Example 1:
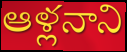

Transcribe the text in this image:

ఆళ్లనాని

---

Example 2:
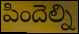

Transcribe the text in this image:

పిందెల్ని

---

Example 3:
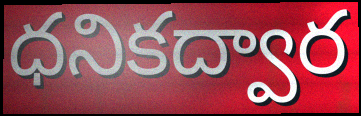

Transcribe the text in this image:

ధనికద్వార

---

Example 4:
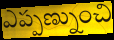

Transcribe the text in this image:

ఎప్పణ్నుంచి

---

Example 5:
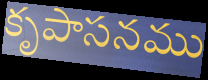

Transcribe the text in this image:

కృపాసనము